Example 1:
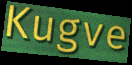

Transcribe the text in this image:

Kugve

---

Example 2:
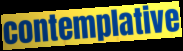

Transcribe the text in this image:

contemplative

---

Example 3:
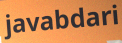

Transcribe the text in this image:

javabdari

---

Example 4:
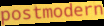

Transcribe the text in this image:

postmodern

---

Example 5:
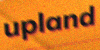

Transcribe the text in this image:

upland